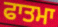
ਫਾਤਮਾ